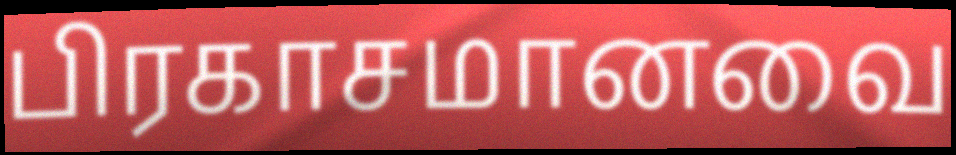
பிரகாசமானவை